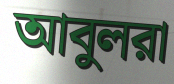
আবুলরা